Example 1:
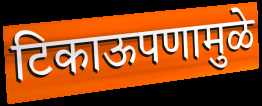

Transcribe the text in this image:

टिकाऊपणामुळे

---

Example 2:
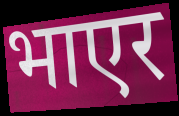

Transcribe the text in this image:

भाएर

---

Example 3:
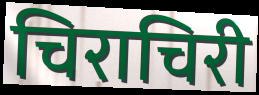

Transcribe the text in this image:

चिराचिरी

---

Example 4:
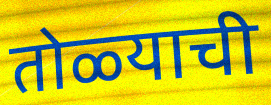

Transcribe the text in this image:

तोळ्याची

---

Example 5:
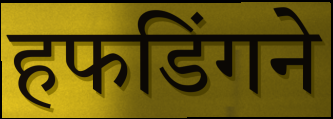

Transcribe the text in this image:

हफडिंगने